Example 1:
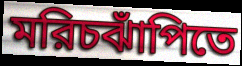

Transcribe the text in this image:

মরিচঝাঁপিতে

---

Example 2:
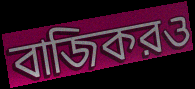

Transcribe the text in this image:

বাজিকরও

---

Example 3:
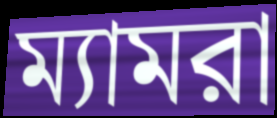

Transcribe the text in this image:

ম্যামরা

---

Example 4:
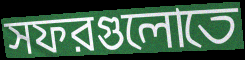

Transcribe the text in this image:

সফরগুলোতে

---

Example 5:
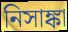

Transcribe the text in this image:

নিসাঙ্কা